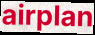
airplan